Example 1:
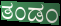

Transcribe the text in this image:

ತಂಡಂ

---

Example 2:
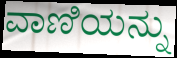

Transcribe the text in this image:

ವಾಣಿಯನ್ನು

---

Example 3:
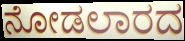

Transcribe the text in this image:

ನೋಡಲಾರದ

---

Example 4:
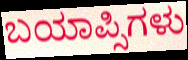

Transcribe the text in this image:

ಬಯಾಪ್ಸಿಗಳು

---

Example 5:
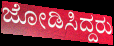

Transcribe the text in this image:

ಜೋಡಿಸಿದ್ದರು